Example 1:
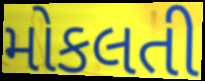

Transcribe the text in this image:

મોકલતી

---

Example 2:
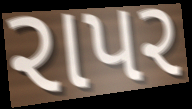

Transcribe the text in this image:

રાપર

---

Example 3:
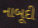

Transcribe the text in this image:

નાબૂદી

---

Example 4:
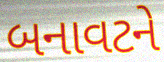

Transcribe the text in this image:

બનાવટને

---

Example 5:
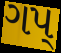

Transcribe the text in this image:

ગપ્